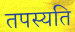
तपस्यति